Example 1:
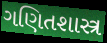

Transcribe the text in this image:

ગણિતશાસ્ત્ર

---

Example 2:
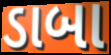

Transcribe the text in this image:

ડાબા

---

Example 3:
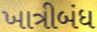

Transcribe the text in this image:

ખાત્રીબંધ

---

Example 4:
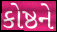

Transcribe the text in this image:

કોષ્ઠને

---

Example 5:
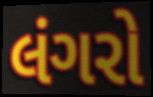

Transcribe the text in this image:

લંગરો